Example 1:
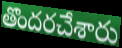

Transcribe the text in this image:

తొందరచేశారు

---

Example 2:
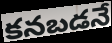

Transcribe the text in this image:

కనబడనే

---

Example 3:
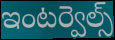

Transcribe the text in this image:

ఇంటర్వెల్స్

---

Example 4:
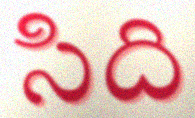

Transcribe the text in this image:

సిది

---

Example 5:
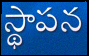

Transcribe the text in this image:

స్థాపన